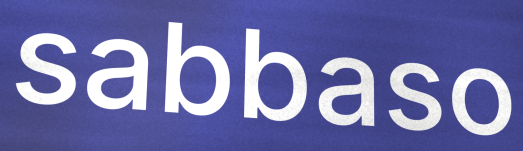
sabbaso